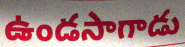
ఉండసాగాడు